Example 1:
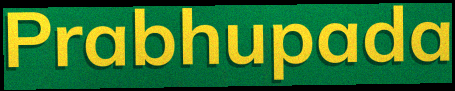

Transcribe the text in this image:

Prabhupada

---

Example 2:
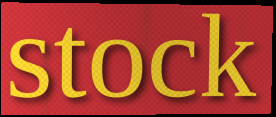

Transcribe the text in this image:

stock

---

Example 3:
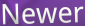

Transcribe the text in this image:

Newer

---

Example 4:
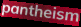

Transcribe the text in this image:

pantheism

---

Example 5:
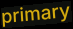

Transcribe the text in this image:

primary